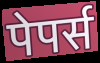
पेपर्स